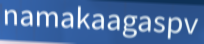
namakaagaspv